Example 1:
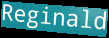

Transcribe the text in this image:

Reginald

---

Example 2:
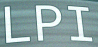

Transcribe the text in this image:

LPI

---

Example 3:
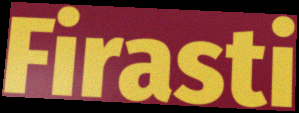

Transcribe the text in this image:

Firasti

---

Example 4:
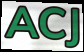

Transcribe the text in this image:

ACJ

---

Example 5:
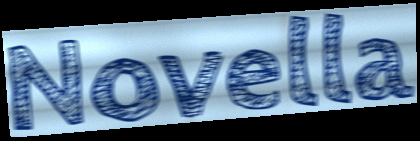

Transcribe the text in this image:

Novella